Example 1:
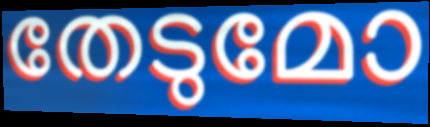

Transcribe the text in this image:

തേടുമോ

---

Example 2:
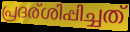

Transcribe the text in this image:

പ്രദര്ശിപ്പിച്ചത്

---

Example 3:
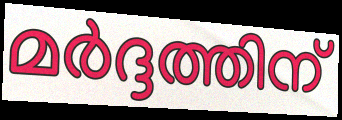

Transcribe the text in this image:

മർദ്ദത്തിന്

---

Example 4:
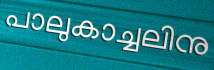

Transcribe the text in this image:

പാലുകാച്ചലിനു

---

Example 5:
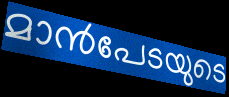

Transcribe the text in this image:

മാൻപേടയുടെ